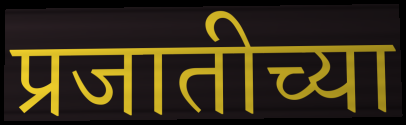
प्रजातीच्या